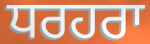
ਧਰਹਰਾ